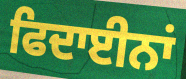
ਫਿਦਾਈਨਾਂ